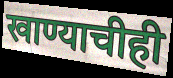
खाण्याचीही